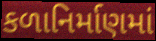
કળાનિર્માણમાં